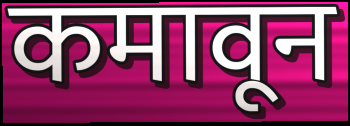
कमावून